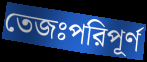
তেজঃপরিপূর্ণ